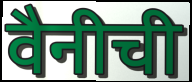
वैनीची